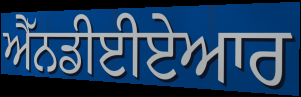
ਐੱਨਡੀਈਏਆਰ